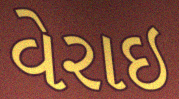
વેરાઇ